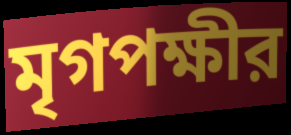
মৃগপক্ষীর